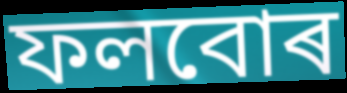
ফলবোৰ